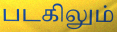
படகிலும்